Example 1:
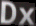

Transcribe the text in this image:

Dx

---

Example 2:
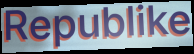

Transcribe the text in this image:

Republike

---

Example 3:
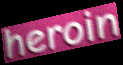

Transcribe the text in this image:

heroin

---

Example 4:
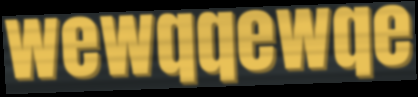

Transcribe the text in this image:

wewqqewqe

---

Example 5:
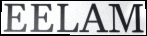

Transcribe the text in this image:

EELAM